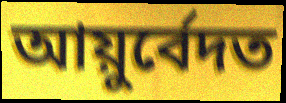
আয়ুৰ্বেদত